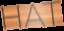
HAT